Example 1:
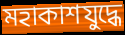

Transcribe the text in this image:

মহাকাশযুদ্ধে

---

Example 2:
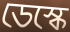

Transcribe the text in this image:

ডেস্কে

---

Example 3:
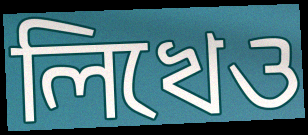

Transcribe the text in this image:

লিখেও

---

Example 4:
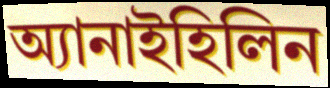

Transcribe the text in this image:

অ্যানাইহিলিন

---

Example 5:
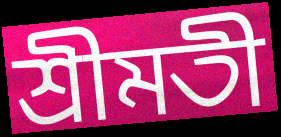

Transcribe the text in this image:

শ্রীমতী